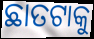
ଛାତଟାକୁ